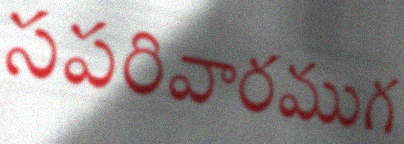
సపరివారముగ